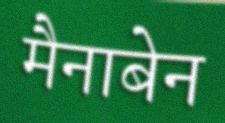
मैनाबेन